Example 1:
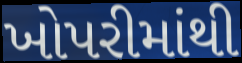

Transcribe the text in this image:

ખોપરીમાંથી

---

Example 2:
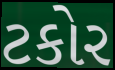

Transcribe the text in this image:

ટકોર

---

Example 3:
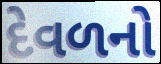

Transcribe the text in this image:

દેવળનો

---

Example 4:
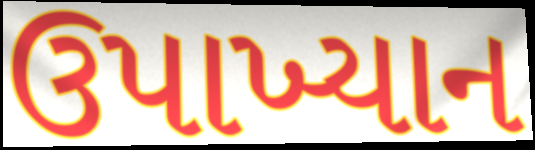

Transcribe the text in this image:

ઉપાખ્યાન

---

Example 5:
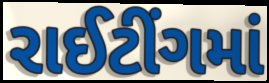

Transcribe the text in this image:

રાઈટીંગમાં